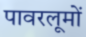
पावरलूमों